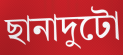
ছানাদুটো